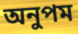
অনুপম